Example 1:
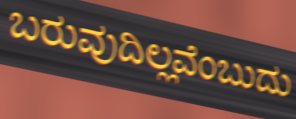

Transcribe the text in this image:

ಬರುವುದಿಲ್ಲವೆಂಬುದು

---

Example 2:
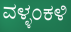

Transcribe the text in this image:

ವಳ್ಳಂಕಳಿ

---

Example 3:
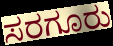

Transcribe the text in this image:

ಸರಗೂರು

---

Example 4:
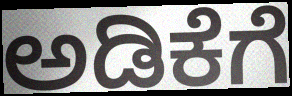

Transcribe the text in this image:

ಅಡಿಕೆಗೆ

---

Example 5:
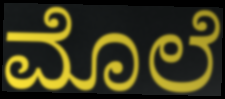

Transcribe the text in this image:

ಮೊಲೆ